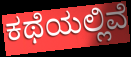
ಕಥೆಯಲ್ಲಿವೆ